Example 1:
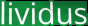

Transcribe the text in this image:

lividus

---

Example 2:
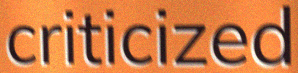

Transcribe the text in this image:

criticized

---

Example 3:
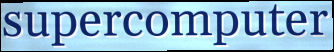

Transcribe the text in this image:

supercomputer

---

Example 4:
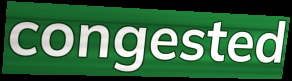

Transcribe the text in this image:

congested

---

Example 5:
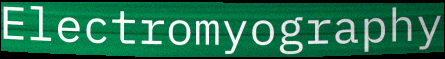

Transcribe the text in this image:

Electromyography